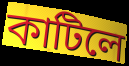
কাটিলে